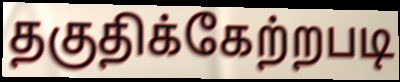
தகுதிக்கேற்றபடி